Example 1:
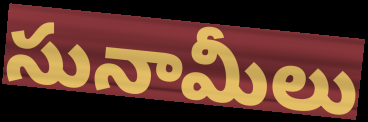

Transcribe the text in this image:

సునామీలు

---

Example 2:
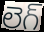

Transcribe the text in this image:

లెగ్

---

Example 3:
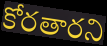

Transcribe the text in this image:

కోరతారని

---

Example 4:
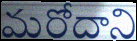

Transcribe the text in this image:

మరోదాని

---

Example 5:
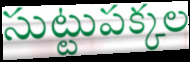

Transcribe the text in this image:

సుట్టుపక్కల